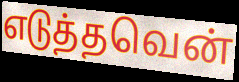
எடுத்தவென்